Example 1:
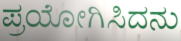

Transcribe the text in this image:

ಪ್ರಯೋಗಿಸಿದನು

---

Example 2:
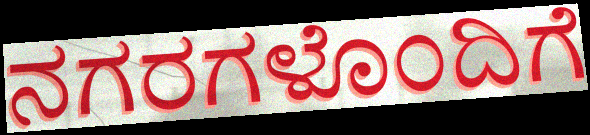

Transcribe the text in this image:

ನಗರಗಳೊಂದಿಗೆ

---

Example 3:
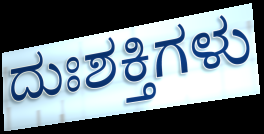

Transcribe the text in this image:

ದುಃಶಕ್ತಿಗಳು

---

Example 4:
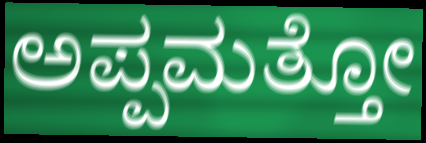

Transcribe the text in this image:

ಅಪ್ಪಮತ್ತೋ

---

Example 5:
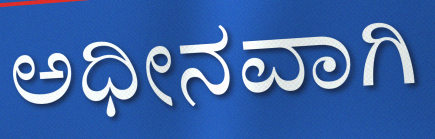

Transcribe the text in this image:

ಅಧೀನವಾಗಿ